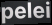
pelei